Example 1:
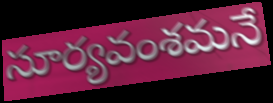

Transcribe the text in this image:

సూర్యవంశమనే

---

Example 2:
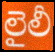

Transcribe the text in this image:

లైలీ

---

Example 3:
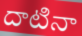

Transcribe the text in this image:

దాటినా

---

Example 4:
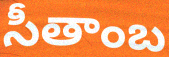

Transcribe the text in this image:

సీతాంబ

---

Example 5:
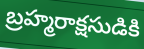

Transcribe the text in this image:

బ్రహ్మరాక్షసుడికి